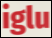
iglu